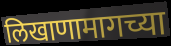
लिखाणामागच्या